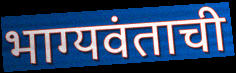
भाग्यवंताची